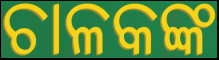
ଚାଳକଙ୍କ